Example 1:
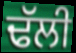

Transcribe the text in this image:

ਢੱਲੀ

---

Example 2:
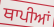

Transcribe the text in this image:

ਥਾਪੀਆਂ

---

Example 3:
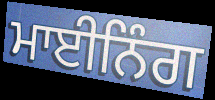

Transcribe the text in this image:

ਮਾਈਨਿੰਗ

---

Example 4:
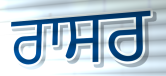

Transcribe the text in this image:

ਰਾਸਰ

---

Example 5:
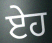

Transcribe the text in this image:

ਏਹ